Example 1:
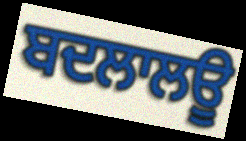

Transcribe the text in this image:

ਬਦਲਾਲਊ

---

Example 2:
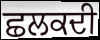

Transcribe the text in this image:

ਛਲਕਦੀ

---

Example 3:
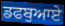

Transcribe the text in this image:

ਡਫਬੁਆਏ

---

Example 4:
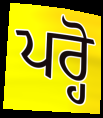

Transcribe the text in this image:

ਪਰ੍ਹੋ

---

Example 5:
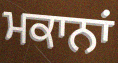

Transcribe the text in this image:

ਮਕਾਨਾਂ